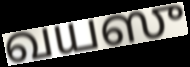
வயஸு